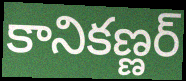
కానికణ్ణర్